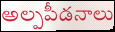
అల్పపీడనాలు